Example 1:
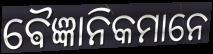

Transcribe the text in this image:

ଵୈଜ୍ଞାନିକମାନେ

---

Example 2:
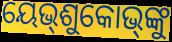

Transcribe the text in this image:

ୟେଭ୍‌ଶୁକୋଭ୍‌ଙ୍କୁ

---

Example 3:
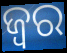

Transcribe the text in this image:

ଜ୍ବର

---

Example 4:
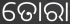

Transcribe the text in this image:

ତୋରା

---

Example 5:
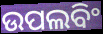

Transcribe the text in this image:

ଉପଲବିଂ